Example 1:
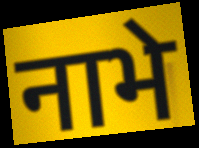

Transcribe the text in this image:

नाभे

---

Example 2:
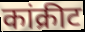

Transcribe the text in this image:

कांक्रीट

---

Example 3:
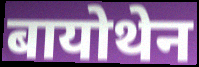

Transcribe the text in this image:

बायोथेन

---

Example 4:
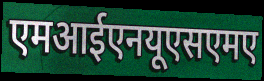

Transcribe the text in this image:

एमआईएनयूएसएमए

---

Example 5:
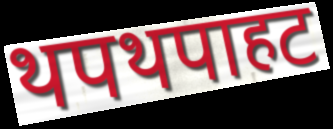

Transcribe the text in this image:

थपथपाहट